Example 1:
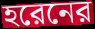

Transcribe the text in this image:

হরেনের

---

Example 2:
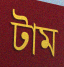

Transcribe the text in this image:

টাম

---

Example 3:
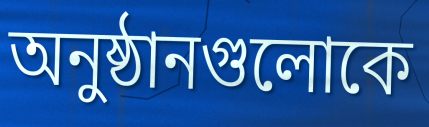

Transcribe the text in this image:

অনুষ্ঠানগুলোকে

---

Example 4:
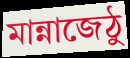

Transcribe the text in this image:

মান্নাজেঠু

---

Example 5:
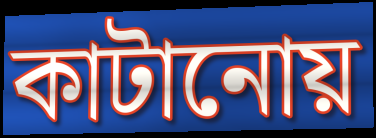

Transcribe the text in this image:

কাটানোয়